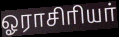
ஓராசிரியர்